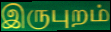
இருபுறம்